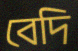
বেদি